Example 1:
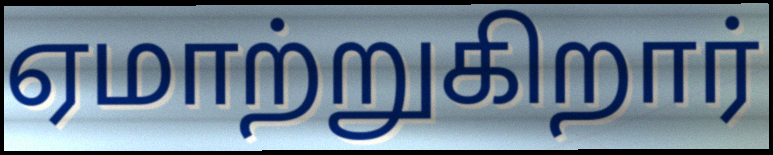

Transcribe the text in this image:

ஏமாற்றுகிறார்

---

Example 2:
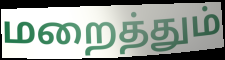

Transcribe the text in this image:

மறைத்தும்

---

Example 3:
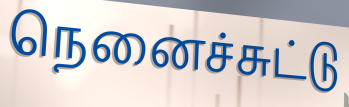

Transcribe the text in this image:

நெனைச்சுட்டு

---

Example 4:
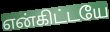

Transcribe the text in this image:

என்கிட்டயே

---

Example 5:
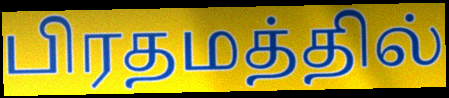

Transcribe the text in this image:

பிரதமத்தில்